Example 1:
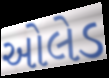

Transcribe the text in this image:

ઓલેડ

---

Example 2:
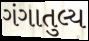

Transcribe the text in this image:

ગંગાતુલ્ય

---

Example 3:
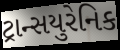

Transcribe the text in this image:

ટ્રાન્સયુરેનિક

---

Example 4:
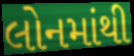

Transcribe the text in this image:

લોનમાંથી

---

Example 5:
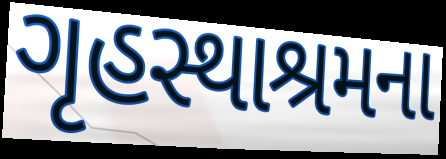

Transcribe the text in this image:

ગૃહસ્થાશ્રમના